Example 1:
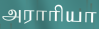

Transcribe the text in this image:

அராரியா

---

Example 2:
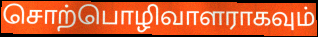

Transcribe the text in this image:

சொற்பொழிவாளராகவும்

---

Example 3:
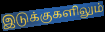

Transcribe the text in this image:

இடுக்குகளிலும்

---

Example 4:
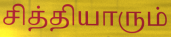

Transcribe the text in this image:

சித்தியாரும்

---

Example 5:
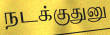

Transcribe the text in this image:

நடக்குதுனு